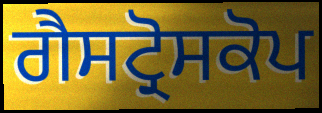
ਗੈਸਟ੍ਰੋਸਕੋਪ